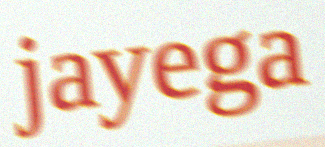
jayega